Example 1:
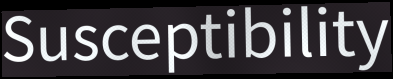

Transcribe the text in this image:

Susceptibility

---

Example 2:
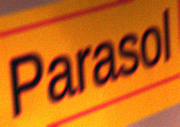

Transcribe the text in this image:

Parasol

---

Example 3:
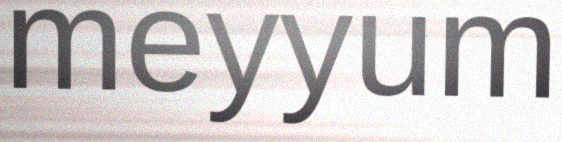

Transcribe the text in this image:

meyyum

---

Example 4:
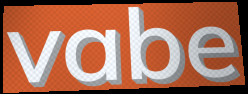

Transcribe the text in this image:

vabe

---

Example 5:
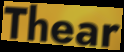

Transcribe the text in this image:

Thear